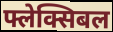
फ्लेक्सिबल